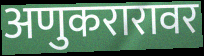
अणुकरारावर